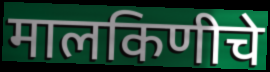
मालकिणीचे